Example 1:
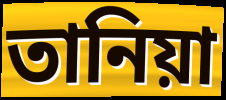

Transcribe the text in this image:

তানিয়া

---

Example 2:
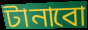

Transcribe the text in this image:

টানাবো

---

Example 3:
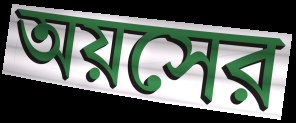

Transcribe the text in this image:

অয়সের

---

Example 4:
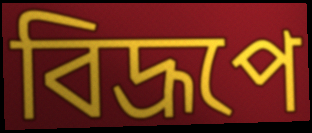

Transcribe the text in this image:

বিদ্রূপে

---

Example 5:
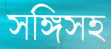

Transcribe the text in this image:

সঙ্গিসহ